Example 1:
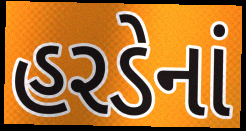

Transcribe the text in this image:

હરડેનાં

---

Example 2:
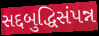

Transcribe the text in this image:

સદ્દબુદ્ધિસંપન્ન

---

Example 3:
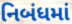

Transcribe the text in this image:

નિબંધમાં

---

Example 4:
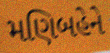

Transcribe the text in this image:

મણિબહેને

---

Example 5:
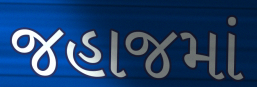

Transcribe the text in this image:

જહાજમાં